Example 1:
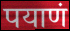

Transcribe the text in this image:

पयाणं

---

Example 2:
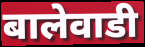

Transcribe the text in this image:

बालेवाडी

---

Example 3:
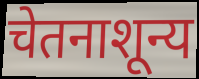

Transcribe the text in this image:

चेतनाशून्य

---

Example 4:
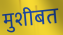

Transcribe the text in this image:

मुशीबत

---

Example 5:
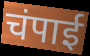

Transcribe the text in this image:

चंपाई